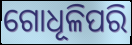
ଗୋଧୂଳିପରି